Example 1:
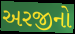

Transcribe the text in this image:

અરજીનો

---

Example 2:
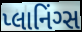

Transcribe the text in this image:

પ્લાનિંગ્સ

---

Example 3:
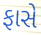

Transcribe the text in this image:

ફાસે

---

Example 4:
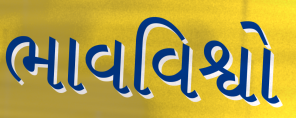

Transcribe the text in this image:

ભાવવિશ્વો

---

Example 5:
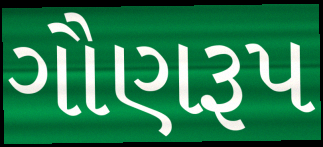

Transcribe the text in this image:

ગૌણરૂપ